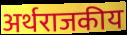
अर्थराजकीय